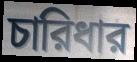
চারিধার